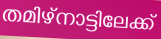
തമിഴ്നാട്ടിലേക്ക്